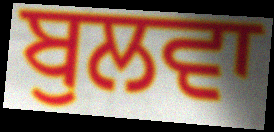
ਬੁਲਵਾ